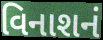
વિનાશનં